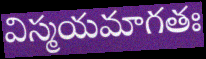
విస్మయమాగతః